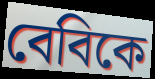
বেবিকে